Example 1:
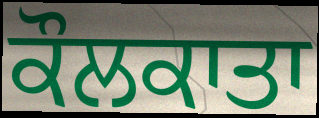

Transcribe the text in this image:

ਕੌਲਕਾਤਾ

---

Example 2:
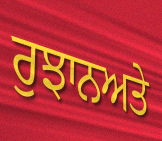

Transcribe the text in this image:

ਰੁਝਾਨਅਤੇ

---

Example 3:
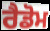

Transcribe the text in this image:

ਰੈਡੋਮ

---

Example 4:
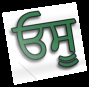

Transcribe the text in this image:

ਓਸੂ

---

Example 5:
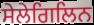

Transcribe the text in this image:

ਸੇਲੇਗਿਲਿਨ